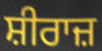
ਸ਼ੀਰਾਜ਼